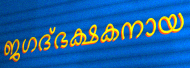
ജഗദ്ഭക്ഷകനായ